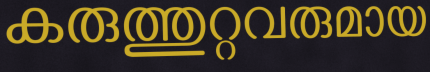
കരുത്തുറ്റവരുമായ